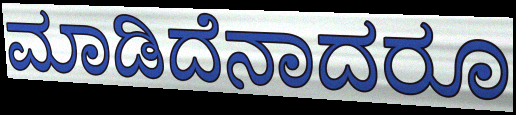
ಮಾಡಿದೆನಾದರೂ